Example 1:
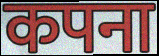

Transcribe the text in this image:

कपना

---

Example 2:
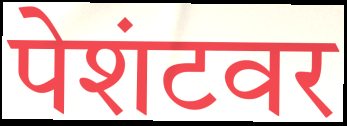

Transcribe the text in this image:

पेशंटवर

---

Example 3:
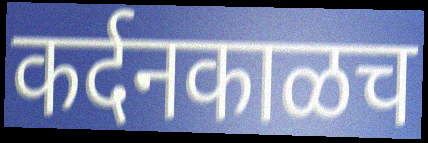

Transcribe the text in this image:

कर्दनकाळच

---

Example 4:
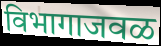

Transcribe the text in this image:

विभागाजवळ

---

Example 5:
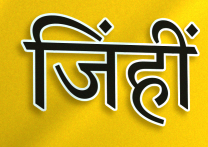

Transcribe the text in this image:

जिंहीं